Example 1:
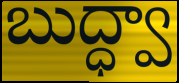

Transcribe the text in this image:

బుద్ధ్వా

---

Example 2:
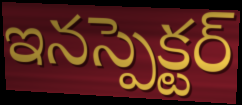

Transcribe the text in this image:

ఇనస్పెక్టర్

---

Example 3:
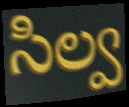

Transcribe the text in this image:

సిల్వ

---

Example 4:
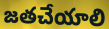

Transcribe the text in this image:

జతచేయాలి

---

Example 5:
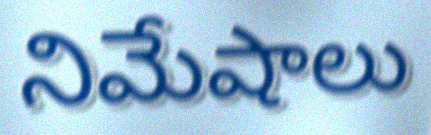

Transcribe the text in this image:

నిమేషాలు